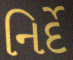
નિર્દે